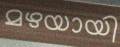
മഴയായി